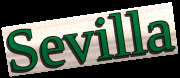
Sevilla